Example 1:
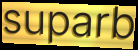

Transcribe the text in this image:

suparb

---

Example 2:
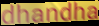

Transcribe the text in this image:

dhandha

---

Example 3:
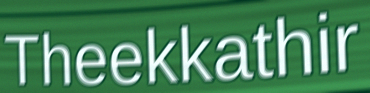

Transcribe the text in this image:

Theekkathir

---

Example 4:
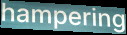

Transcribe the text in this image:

hampering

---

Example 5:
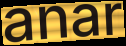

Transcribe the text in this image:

anar